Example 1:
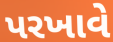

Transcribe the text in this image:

પરખાવે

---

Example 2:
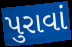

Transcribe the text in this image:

પુરાવાં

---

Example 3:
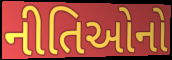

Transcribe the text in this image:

નીતિઓનો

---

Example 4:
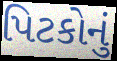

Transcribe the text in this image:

પિટકોનું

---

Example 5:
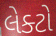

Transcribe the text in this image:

લેક્ટો